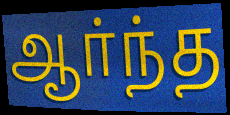
ஆர்ந்த